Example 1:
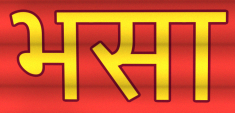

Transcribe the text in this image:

भसा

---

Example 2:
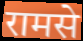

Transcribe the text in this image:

रामसे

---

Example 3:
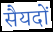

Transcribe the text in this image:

सैयदों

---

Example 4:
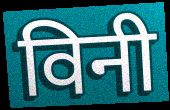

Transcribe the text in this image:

विनी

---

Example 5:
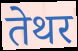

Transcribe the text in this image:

तेथर